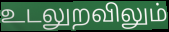
உடலுறவிலும்